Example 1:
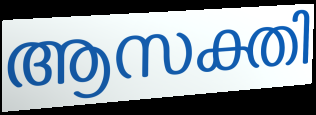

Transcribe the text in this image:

ആസക്തി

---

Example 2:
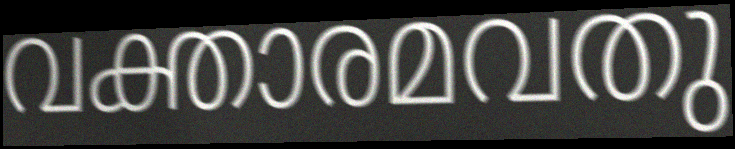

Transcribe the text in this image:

വക്താരമവതു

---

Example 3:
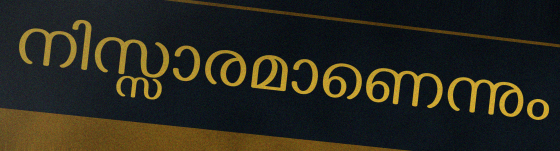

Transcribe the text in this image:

നിസ്സാരമാണെന്നും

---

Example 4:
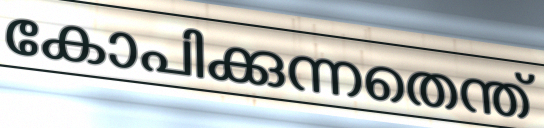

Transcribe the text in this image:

കോപിക്കുന്നതെന്ത്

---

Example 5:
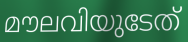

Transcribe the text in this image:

മൗലവിയുടേത്